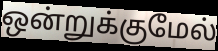
ஒன்றுக்குமேல்